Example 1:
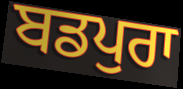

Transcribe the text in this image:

ਬਡਪੁਰਾ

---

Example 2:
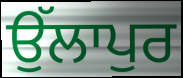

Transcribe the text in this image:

ਉੱਲਾਪੁਰ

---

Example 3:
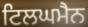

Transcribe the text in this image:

ਟਿਲਘਮੈਨ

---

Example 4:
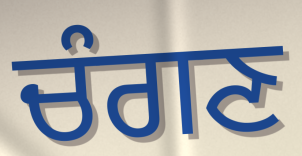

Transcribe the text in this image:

ਚੰਗਣ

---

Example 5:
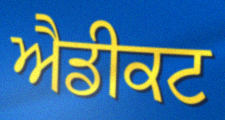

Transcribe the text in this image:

ਐਡੀਕਟ